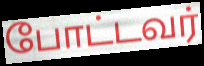
போட்டவர்